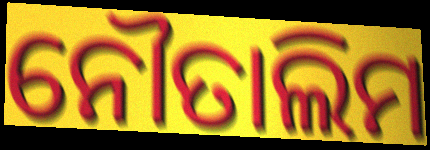
ନୌତାଲିମ